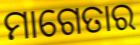
ମାଗେତାର